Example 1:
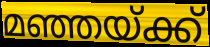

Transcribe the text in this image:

മഞ്ഞയ്ക്ക്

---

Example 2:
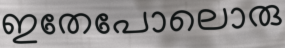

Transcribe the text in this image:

ഇതേപോലൊരു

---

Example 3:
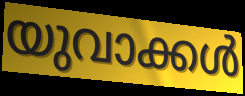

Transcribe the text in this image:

യുവാക്കൾ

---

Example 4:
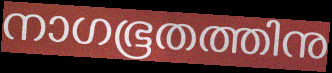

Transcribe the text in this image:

നാഗഭൂതത്തിനു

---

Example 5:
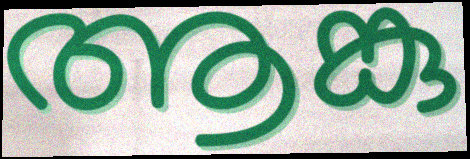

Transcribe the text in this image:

ആങ്കു